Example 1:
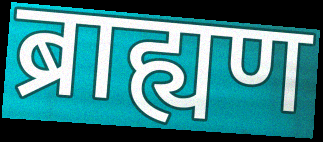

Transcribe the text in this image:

ब्राह्यण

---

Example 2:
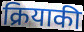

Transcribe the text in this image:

क्रियाकी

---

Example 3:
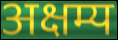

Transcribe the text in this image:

अक्षम्‍य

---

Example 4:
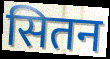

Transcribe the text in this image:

सितन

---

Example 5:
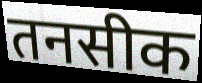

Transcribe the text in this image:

तनसीक